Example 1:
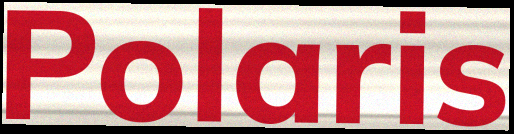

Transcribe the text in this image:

Polaris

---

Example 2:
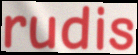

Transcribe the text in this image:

rudis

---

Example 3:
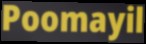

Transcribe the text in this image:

Poomayil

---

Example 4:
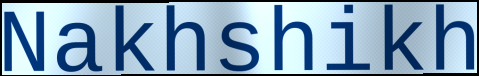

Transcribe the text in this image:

Nakhshikh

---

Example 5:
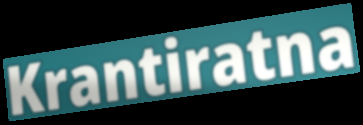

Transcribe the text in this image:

Krantiratna